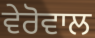
ਵੇਰੋਵਾਲ